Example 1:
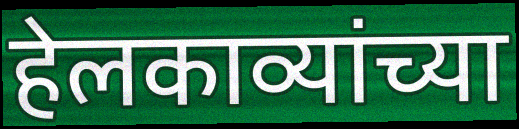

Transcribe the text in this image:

हेलकाव्यांच्या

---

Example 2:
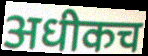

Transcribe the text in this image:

अधीकच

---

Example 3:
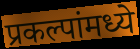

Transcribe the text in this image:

प्रकल्पांमध्ये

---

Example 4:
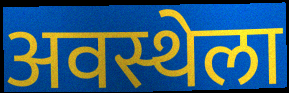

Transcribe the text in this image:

अवस्थेला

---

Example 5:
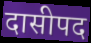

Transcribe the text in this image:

दासीपद